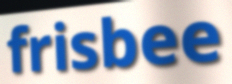
frisbee